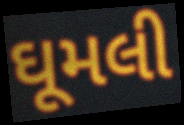
ઘૂમલી